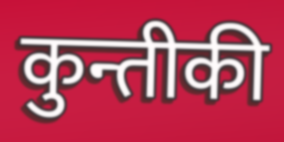
कुन्तीकी